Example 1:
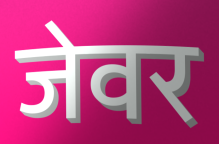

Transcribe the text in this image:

जेवर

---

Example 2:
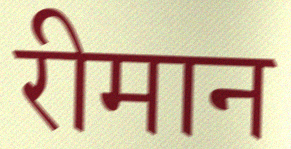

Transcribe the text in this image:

रीमान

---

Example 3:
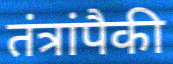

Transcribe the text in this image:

तंत्रांपैकी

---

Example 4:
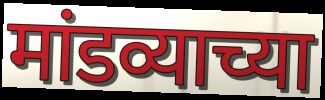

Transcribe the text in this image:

मांडव्याच्या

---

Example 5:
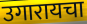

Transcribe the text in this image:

उगारायचा